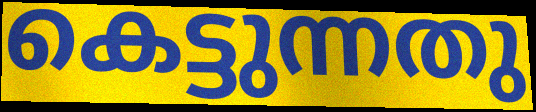
കെട്ടുന്നതു